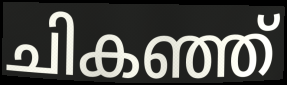
ചികഞ്ഞ്